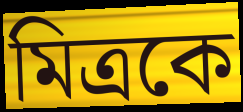
মিত্রকে